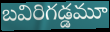
బవిరిగడ్డమూ